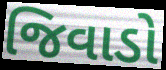
જિવાડો